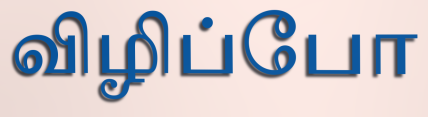
விழிப்போ